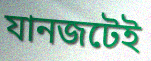
যানজটেই